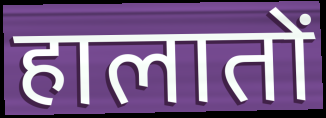
हालातों